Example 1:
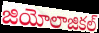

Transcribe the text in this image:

జియోలాజికల్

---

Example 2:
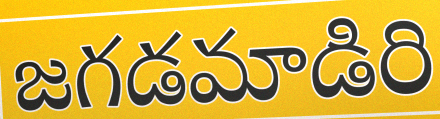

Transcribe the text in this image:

జగడమాడిరి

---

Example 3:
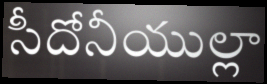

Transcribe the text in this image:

సీదోనీయుల్లా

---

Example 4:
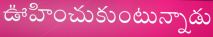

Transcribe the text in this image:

ఊహించుకుంటున్నాడు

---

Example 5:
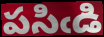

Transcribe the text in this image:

పసిఁడి